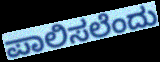
ಪಾಲಿಸಲೆಂದು